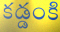
కడ్డంకి